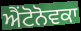
ਐਂਟੋਨੋਵਕਾ